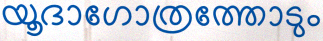
യൂദാഗോത്രത്തോടും